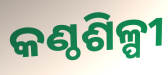
କଣ୍ଠଶିଳ୍ପୀ